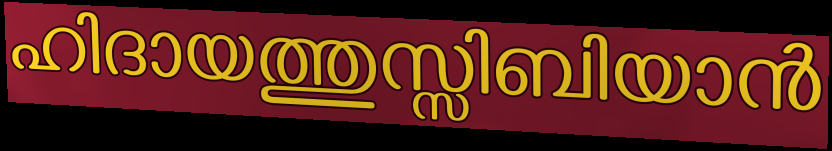
ഹിദായത്തുസ്സിബിയാൻ